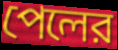
পেলের